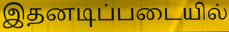
இதனடிப்படையில்